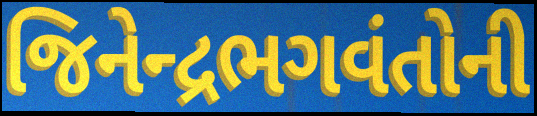
જિનેન્દ્રભગવંતોની